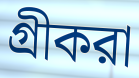
গ্রীকরা